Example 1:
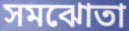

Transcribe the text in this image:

সমঝোতা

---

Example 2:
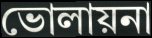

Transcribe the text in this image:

ভোলায়না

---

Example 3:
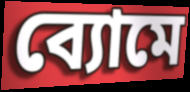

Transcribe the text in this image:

ব্যোমে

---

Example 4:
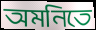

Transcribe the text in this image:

অমনিতে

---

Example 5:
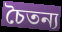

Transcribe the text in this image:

চৈতন্য